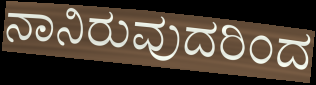
ನಾನಿರುವುದರಿಂದ